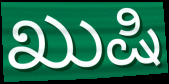
ಖುಷಿ